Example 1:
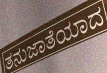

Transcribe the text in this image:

ತನುಜಾತೆಯಾದ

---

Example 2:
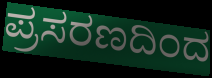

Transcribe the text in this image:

ಪ್ರಸರಣದಿಂದ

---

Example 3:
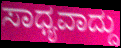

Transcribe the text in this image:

ಸಾಧ್ಯವಾದ್ದು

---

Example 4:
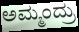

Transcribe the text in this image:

ಅಮ್ಮಂದ್ರು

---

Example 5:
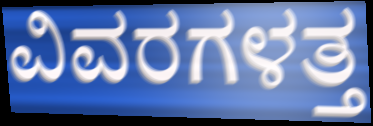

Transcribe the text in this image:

ವಿವರಗಳತ್ತ